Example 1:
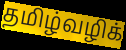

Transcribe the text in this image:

தமிழ்வழிக்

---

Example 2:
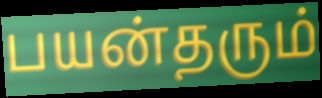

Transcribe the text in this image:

பயன்தரும்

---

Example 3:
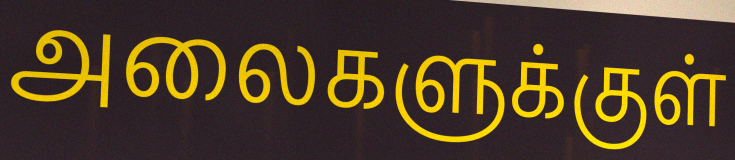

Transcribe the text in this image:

அலைகளுக்குள்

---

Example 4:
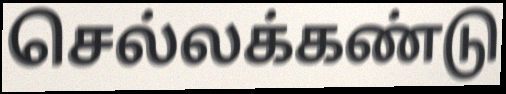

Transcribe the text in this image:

செல்லக்கண்டு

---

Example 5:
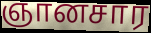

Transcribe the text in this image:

ஞானசார